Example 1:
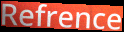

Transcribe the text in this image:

Refrence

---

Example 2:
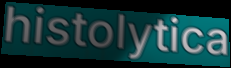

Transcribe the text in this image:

histolytica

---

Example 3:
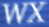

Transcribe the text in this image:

WX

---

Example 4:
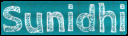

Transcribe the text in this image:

Sunidhi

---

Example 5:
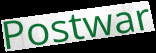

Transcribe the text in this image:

Postwar